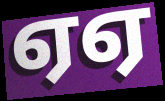
ஏஏ